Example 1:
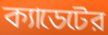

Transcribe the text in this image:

ক্যাডেটের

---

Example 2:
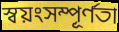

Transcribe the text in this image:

স্বয়ংসম্পূর্ণতা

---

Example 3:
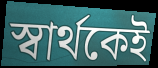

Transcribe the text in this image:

স্বার্থকেই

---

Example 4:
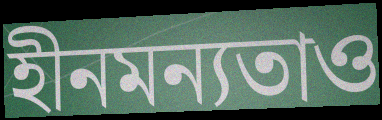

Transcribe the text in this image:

হীনমন্যতাও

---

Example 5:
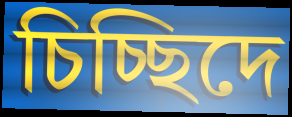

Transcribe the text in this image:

চিচ্ছিদে